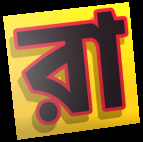
রা